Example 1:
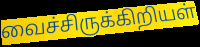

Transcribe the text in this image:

வைச்சிருக்கிறியள்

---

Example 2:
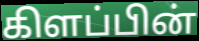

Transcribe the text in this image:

கிளப்பின்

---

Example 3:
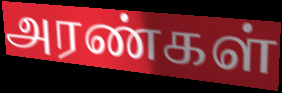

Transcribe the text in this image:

அரண்கள்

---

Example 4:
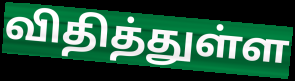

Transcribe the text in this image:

விதித்துள்ள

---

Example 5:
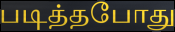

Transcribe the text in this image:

படித்தபோது